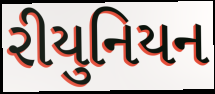
રીયુનિયન